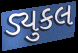
ડ્યુકલ